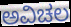
ಅವಿಚಲ